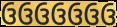
ઉઉઉઉઉઉઉ